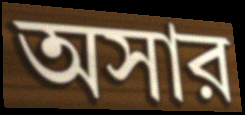
অসার